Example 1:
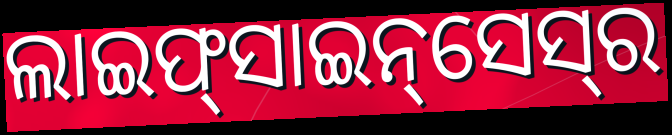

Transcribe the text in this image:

ଲାଇଫ୍‌ସାଇନ୍‌ସେସ୍‌ର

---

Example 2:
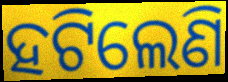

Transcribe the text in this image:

ହଟିଲେଣି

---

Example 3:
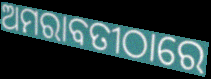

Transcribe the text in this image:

ଅମରାବତୀଠାରେ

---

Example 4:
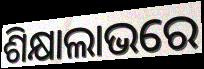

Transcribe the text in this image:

ଶିକ୍ଷାଲାଭରେ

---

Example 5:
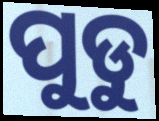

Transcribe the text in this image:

ପୁଡୁ